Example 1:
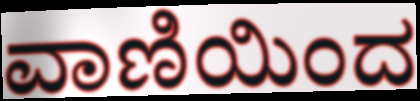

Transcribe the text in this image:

ವಾಣಿಯಿಂದ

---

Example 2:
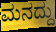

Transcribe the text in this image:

ಮನದ್ದು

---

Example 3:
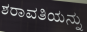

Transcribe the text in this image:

ಶರಾವತಿಯನ್ನು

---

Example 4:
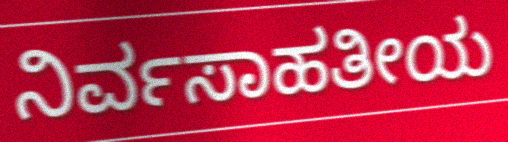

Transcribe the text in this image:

ನಿರ್ವಸಾಹತೀಯ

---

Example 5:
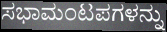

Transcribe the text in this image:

ಸಭಾಮಂಟಪಗಳನ್ನು